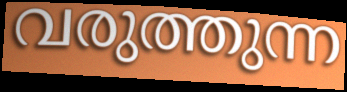
വരുത്തുന്ന